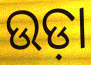
ଉଡ଼ା